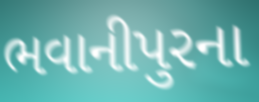
ભવાનીપુરના